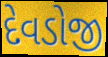
દેવડોજી